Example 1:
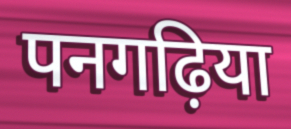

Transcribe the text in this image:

पनगढ़िया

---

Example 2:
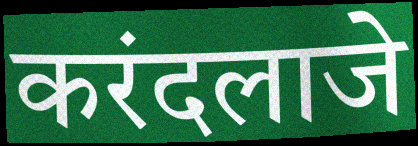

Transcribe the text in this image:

करंदलाजे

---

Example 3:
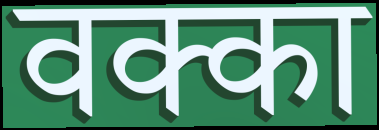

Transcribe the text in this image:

वक्का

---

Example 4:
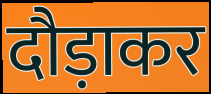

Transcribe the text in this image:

दौड़ाकर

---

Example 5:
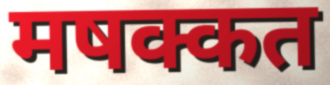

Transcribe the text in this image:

मषक्कत